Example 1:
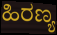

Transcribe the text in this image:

ಹಿರಣ್ಯ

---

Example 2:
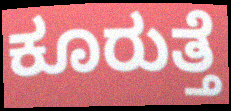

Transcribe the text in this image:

ಕೂರುತ್ತೆ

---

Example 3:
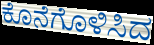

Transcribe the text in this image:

ಕೊನೆಗೊಳಿಸಿದ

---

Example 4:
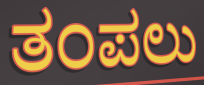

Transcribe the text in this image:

ತಂಪಲು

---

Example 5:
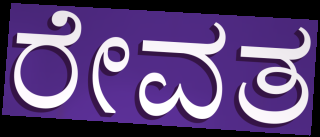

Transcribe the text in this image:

ರೇವತ